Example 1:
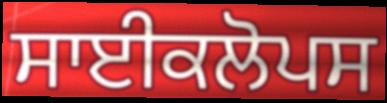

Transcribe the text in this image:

ਸਾਈਕਲੋਪਸ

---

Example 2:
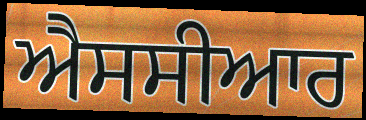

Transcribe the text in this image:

ਐਸਸੀਆਰ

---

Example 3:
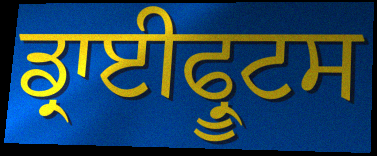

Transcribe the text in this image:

ਡ੍ਰਾਈਫ੍ਰੂਟਸ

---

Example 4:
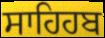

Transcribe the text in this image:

ਸਾਹਿਹਬ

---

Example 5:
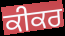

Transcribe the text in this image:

ਕੀਕਰ